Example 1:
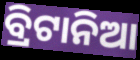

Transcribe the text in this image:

ବ୍ରିଟାନିଆ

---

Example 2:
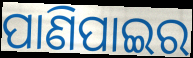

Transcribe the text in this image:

ପାଣିପାଇର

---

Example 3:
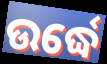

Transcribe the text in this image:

ଉର୍ଦ୍ଧେ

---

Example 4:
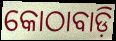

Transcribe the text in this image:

କୋଠାବାଡ଼ି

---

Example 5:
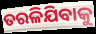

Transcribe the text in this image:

ତରଳିଯିବାକୁ